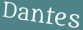
Dantes